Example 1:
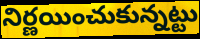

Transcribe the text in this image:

నిర్ణయించుకున్నట్టు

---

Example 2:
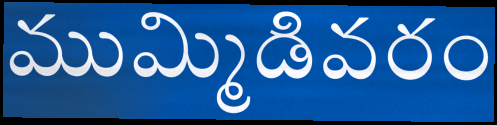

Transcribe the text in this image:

ముమ్మిడివరం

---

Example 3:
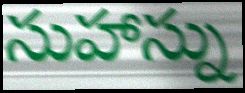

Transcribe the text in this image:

సుహాస్ను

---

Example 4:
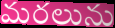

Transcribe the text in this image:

మరలును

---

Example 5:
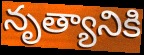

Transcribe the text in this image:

నృత్యానికి